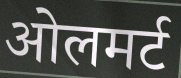
ओलमर्ट